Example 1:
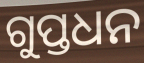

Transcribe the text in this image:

ଗୁପ୍ତଧନ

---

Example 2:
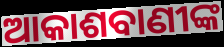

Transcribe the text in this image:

ଆକାଶବାଣୀଙ୍କ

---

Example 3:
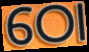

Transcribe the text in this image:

ଠୋ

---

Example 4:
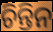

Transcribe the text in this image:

ଚିନ୍ତିନ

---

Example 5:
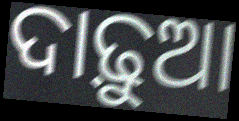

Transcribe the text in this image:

ଦାଢ଼ୁଆ